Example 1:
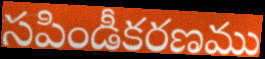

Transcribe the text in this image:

సపిండీకరణము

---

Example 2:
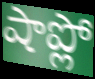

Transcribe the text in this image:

షాప్లో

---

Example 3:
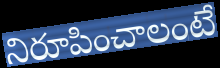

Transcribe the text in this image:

నిరూపించాలంటే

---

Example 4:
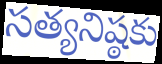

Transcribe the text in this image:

సత్యనిష్ఠకు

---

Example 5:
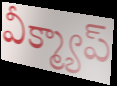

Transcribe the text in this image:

వీక్మ్యాప్